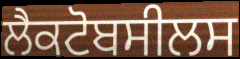
ਲੈਕਟੋਬਸੀਲਸ